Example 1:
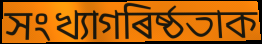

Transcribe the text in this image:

সংখ্যাগৰিষ্ঠতাক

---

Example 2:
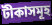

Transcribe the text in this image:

টীকাসমূহ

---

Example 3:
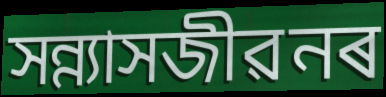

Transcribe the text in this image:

সন্ন্যাসজীৱনৰ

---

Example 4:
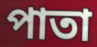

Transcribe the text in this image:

পাতা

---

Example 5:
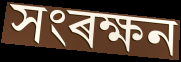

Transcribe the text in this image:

সংৰক্ষন